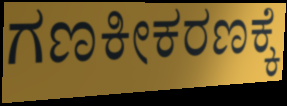
ಗಣಕೀಕರಣಕ್ಕೆ